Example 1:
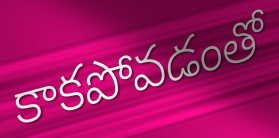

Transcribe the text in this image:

కాకపోవడంతో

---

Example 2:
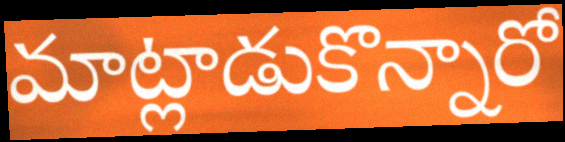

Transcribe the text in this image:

మాట్లాడుకొన్నారో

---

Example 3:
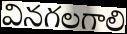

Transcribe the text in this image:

వినగలగాలి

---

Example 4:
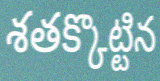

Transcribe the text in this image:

శతక్కొట్టిన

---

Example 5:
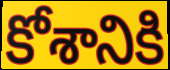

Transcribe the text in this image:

కోశానికి